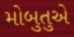
મોબુતુએ